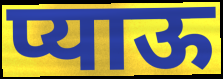
प्याऊ